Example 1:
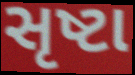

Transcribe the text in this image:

સૃષ્ટા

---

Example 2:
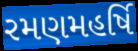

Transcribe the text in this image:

રમણમહર્ષિ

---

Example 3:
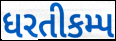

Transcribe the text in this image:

ધરતીકમ્પ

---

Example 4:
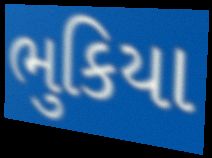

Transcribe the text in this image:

ભુકિયા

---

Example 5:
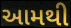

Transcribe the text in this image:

આમથી